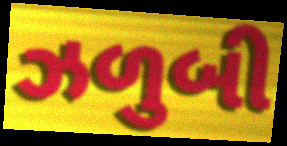
ઝળુબી